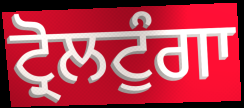
ਟ੍ਰੋਲਟੁੰਗਾ